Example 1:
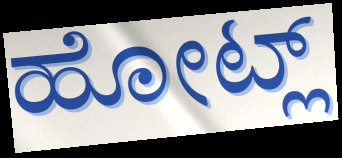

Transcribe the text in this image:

ಹೋಟ್ಲ್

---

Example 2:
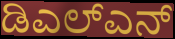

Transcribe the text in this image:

ಡಿಎಲ್ಎನ್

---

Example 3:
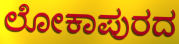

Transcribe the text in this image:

ಲೋಕಾಪುರದ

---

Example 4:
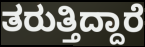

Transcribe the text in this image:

ತರುತ್ತಿದ್ದಾರೆ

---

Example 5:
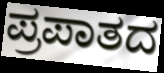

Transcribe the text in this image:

ಪ್ರಪಾತದ